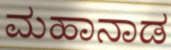
ಮಹಾನಾಡ